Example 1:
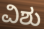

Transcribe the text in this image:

ವಿಶು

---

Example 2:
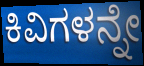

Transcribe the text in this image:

ಕಿವಿಗಳನ್ನೇ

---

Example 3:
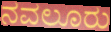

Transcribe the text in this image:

ನವಲೂರು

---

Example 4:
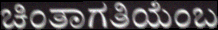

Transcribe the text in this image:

ಚಿಂತಾಗತಿಯೆಂಬ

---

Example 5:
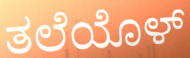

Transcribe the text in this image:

ತಲೆಯೊಳ್